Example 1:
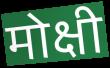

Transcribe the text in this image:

मोक्षी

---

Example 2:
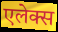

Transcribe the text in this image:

एलेक्स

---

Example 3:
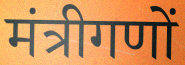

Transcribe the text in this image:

मंत्रीगणों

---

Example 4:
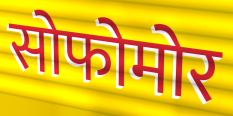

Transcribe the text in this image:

सोफोमोर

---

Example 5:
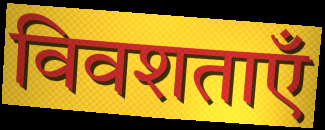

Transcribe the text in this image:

विवशताएँ